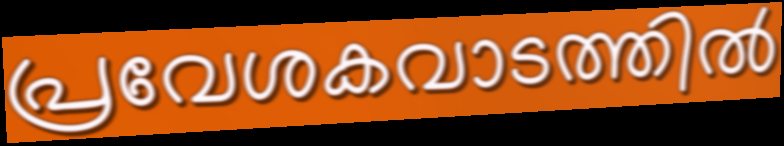
പ്രവേശകവാടത്തിൽ